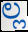
ಲ್ಲ